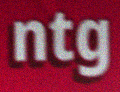
ntg